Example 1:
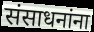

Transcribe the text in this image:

संसाधनांना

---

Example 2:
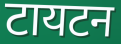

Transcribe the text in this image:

टायटन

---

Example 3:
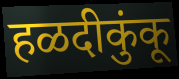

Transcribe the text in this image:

हळदीकुंकू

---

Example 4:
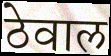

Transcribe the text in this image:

ठेवाल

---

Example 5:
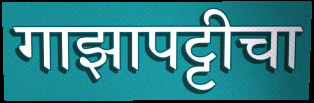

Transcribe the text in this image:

गाझापट्टीचा